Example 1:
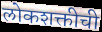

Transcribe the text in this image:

लोकशक्तीची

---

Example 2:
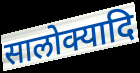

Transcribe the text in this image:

सालोक्यादि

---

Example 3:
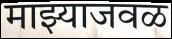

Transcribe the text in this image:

माझ्याजवळ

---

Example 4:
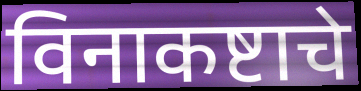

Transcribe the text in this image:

विनाकष्टाचे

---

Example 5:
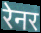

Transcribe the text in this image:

रेनर